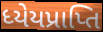
ધ્યેયપ્રાપ્તિ